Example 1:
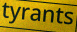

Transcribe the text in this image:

tyrants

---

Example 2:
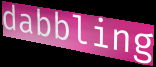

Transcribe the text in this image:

dabbling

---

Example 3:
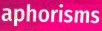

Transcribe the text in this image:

aphorisms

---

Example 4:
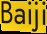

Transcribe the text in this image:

Baiji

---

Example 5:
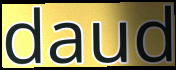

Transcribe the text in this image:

daud